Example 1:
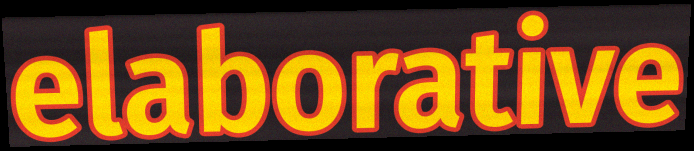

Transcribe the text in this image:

elaborative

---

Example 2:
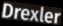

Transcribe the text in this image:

Drexler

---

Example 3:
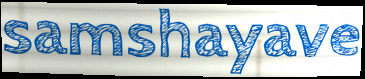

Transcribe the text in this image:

samshayave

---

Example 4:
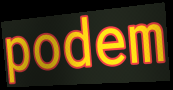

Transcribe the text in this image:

podem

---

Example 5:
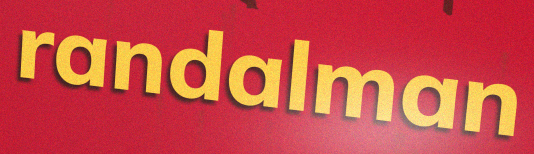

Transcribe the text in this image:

randalman